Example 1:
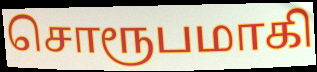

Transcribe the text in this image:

சொரூபமாகி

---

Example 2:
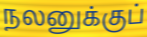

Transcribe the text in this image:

நலனுக்குப்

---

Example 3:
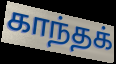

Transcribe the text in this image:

காந்தக்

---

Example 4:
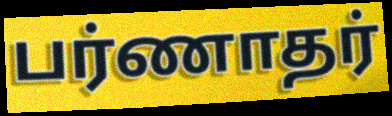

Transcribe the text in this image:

பர்ணாதர்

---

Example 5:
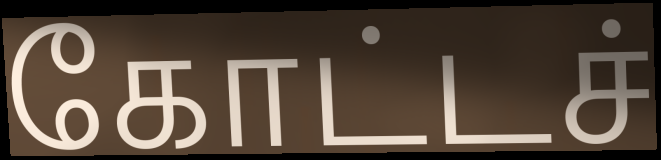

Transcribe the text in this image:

கோட்டச்